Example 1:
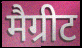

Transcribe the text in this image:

मैग्रीट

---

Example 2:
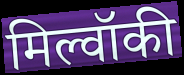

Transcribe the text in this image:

मिल्वॉकी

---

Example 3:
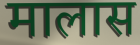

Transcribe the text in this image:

मालास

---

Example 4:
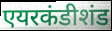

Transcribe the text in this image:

एयरकंडीशंड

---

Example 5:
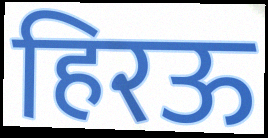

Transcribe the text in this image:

हिरऊ